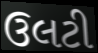
ઉલટી